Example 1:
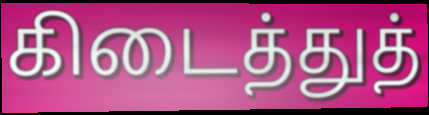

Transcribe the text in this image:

கிடைத்துத்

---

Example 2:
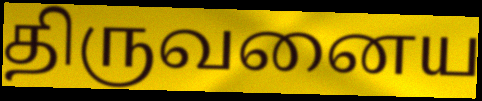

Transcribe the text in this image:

திருவனைய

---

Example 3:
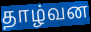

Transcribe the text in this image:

தாழ்வன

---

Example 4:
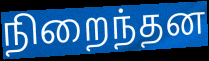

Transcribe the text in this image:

நிறைந்தன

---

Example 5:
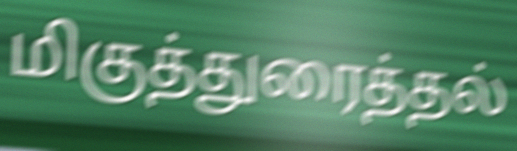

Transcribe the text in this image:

மிகுத்துரைத்தல்